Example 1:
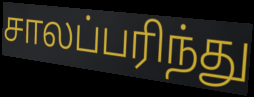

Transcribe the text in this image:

சாலப்பரிந்து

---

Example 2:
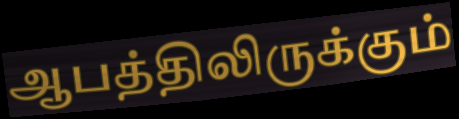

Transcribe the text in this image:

ஆபத்திலிருக்கும்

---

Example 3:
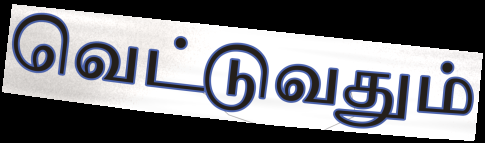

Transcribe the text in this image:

வெட்டுவதும்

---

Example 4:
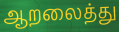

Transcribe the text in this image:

ஆறலைத்து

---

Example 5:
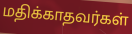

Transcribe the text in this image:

மதிக்காதவர்கள்